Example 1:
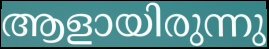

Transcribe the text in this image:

ആളായിരുന്നു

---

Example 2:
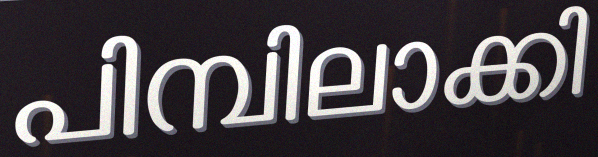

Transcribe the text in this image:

പിമ്പിലാക്കി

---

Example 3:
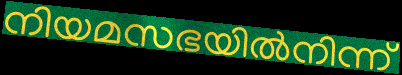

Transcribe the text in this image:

നിയമസഭയിൽനിന്ന്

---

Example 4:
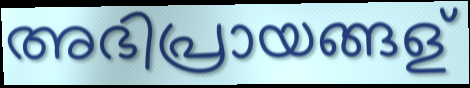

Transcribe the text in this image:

അഭിപ്രായങ്ങള്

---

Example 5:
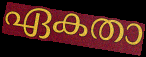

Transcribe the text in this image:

ഏകതാ